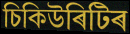
চিকিউৰিটিৰ